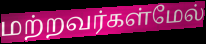
மற்றவர்கள்மேல்